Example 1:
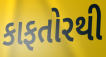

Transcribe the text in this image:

કાફતોરથી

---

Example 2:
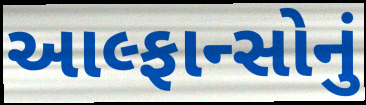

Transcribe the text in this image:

આલ્ફાન્સોનું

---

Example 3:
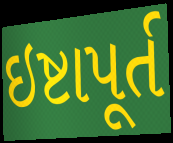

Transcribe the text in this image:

ઇષ્ટાપૂર્ત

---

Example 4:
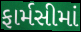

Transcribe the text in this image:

ફાર્મસીમાં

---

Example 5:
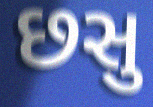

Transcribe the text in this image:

છસુ